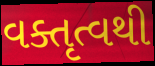
વક્તૃત્વથી